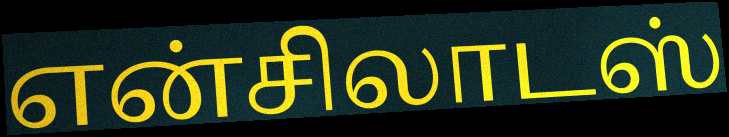
என்சிலாடஸ்